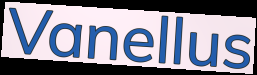
Vanellus